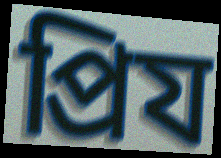
প্রিয